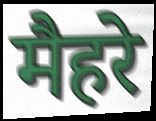
मैहरे